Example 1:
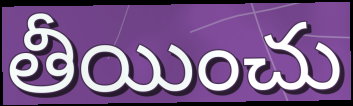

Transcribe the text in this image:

తీయించు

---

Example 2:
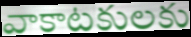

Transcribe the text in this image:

వాకాటకులకు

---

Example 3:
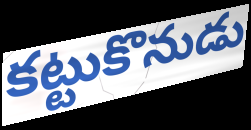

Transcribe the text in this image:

కట్టుకొనుడు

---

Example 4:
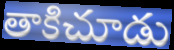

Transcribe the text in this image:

తాకిచూడు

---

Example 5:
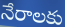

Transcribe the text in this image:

నేరాలకు